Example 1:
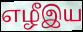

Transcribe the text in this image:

எழீஇய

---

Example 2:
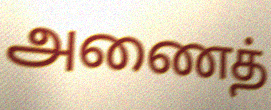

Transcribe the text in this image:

அணைத்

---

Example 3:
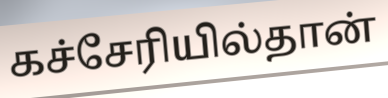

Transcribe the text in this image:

கச்சேரியில்தான்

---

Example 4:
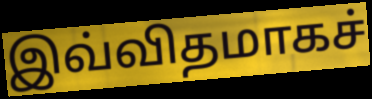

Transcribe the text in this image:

இவ்விதமாகச்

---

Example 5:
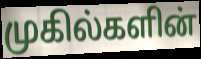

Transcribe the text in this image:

முகில்களின்